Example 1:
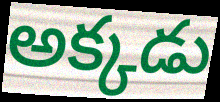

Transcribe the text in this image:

అక్కడు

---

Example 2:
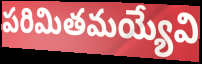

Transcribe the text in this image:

పరిమితమయ్యేవి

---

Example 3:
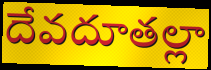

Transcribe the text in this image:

దేవదూతల్లా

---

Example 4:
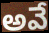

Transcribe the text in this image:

అవే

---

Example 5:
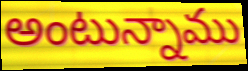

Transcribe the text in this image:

అంటున్నాము